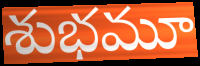
శుభమూ